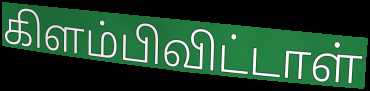
கிளம்பிவிட்டாள்